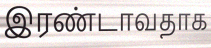
இரண்டாவதாக